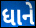
ધાને